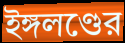
ইঙ্গলণ্ডের